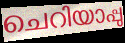
ചെറിയാപ്പു